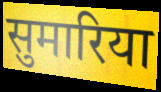
सुमारिया